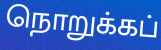
நொறுக்கப்